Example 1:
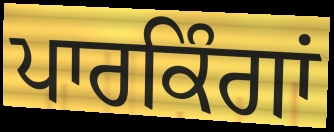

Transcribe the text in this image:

ਪਾਰਕਿੰਗਾਂ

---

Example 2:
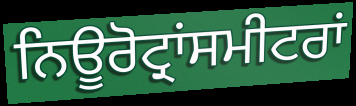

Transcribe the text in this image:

ਨਿਊਰੋਟ੍ਰਾਂਸਮੀਟਰਾਂ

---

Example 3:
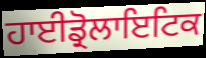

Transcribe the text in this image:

ਹਾਈਡ੍ਰੋਲਾਇਟਿਕ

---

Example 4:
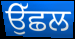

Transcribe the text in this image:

ਉੱਛਲ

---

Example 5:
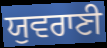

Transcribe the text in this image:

ਯੁਵਰਾਣੀ